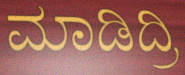
ಮಾಡಿದ್ರಿ